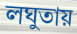
লঘুতায়